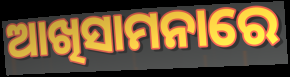
ଆଖିସାମନାରେ